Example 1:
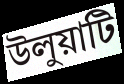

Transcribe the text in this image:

উলুয়াটি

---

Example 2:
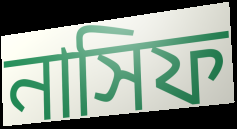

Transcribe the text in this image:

নাসিফ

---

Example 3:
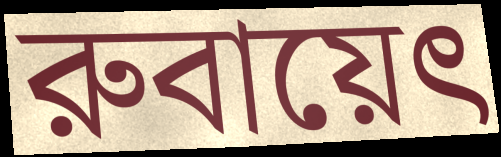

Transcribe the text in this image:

রুবায়েৎ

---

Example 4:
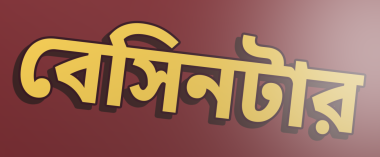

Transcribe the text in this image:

বেসিনটার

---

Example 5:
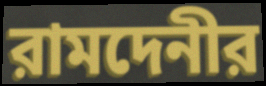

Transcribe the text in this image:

রামদেনীর